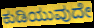
ಕುಡಿಯುವುದೇ